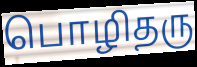
பொழிதரு